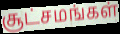
சூட்சமங்கள்